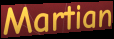
Martian